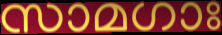
സാമഗാഃ